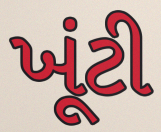
ખૂંટી